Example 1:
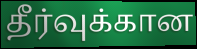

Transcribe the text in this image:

தீர்வுக்கான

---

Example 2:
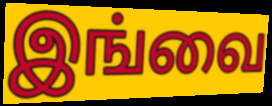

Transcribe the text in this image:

இங்வை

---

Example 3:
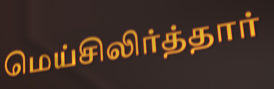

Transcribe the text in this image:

மெய்சிலிர்த்தார்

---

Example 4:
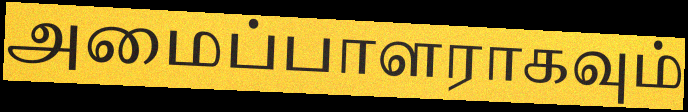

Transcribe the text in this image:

அமைப்பாளராகவும்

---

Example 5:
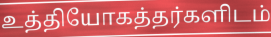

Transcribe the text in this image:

உத்தியோகத்தர்களிடம்